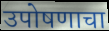
उपोषणाचा